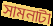
সামনাটা